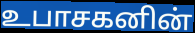
உபாசகனின்